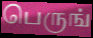
பெருங்